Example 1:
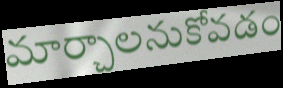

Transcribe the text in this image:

మార్చాలనుకోవడం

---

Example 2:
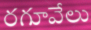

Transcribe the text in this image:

రగూవేలు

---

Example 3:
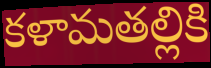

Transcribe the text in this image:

కళామతల్లికి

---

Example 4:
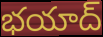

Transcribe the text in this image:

భయాద్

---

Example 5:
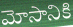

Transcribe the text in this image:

మోసానికి